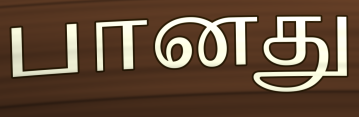
பானது